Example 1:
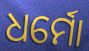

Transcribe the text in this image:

ଧର୍ମୋ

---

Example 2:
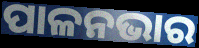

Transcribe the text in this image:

ପାଳନଭାର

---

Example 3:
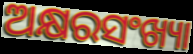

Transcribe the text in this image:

ଅକ୍ଷରସଂଖ୍ୟା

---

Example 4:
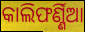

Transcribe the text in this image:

କାଲିଫର୍ଣ୍ଣିଆ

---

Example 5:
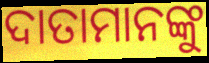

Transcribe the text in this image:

ଦାତାମାନଙ୍କୁ